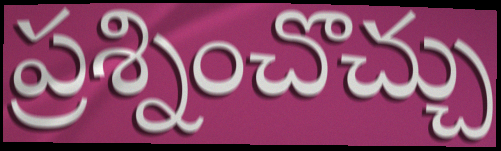
ప్రశ్నించొచ్చు